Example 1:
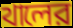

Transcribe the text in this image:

থালের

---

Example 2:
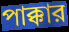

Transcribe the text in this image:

পাক্কার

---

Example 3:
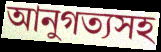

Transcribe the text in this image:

আনুগত্যসহ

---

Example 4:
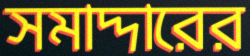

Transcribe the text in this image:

সমাদ্দারের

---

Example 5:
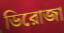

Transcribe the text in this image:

ডিরোজা